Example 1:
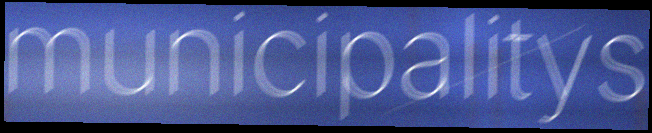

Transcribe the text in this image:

municipalitys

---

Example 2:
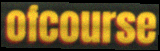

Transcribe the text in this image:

ofcourse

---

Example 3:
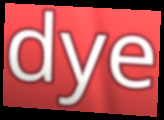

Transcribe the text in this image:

dye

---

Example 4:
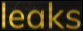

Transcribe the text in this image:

leaks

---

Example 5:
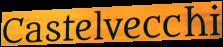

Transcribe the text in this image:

Castelvecchi